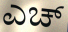
ಎಚ್